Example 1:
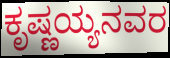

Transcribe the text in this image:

ಕೃಷ್ಣಯ್ಯನವರ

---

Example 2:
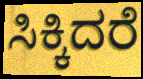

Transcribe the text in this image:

ಸಿಕ್ಕಿದರೆ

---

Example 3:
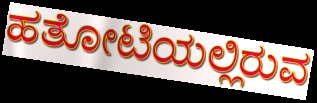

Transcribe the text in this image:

ಹತೋಟಿಯಲ್ಲಿರುವ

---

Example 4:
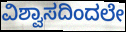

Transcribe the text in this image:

ವಿಶ್ವಾಸದಿಂದಲೇ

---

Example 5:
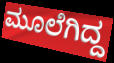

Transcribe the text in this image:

ಮೂಲೆಗಿದ್ದ